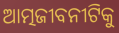
ଆତ୍ମଜୀବନୀଟିକୁ